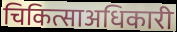
चिकित्साअधिकारी